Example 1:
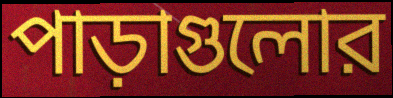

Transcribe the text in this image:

পাড়াগুলোর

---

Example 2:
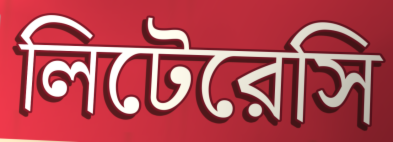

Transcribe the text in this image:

লিটেরেসি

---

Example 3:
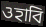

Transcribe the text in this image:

ওহাবি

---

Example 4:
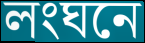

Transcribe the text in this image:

লংঘনে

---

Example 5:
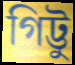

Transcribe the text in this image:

গিট্টু